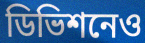
ডিভিশনেও